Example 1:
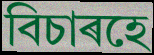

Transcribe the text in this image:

বিচাৰহে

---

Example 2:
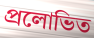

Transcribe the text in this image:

প্ৰলোভিত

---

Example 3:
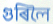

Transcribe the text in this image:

গুৰিলৈ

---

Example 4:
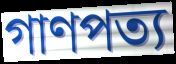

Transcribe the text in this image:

গাণপত্য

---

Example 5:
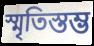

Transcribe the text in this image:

স্মৃতিস্তম্ভ